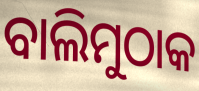
ବାଲିମୁଠାକ